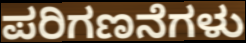
ಪರಿಗಣನೆಗಳು